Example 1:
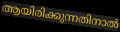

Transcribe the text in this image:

ആയിരിക്കുന്നതിനാൽ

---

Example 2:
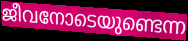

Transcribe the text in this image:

ജീവനോടെയുണ്ടെന്ന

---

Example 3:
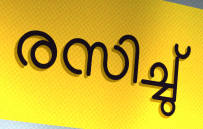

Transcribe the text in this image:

രസിച്ചു്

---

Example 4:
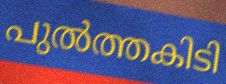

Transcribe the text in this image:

പുൽത്തകിടി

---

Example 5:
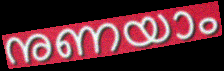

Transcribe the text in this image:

നുണയാം